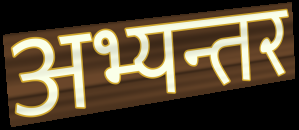
अभ्यन्तर